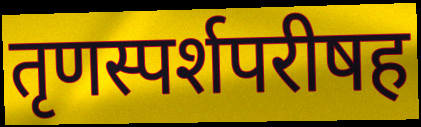
तृणस्पर्शपरीषह